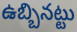
ఉబ్బినట్టు